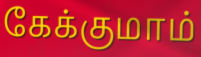
கேக்குமாம்